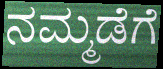
ನಮ್ಮಡೆಗೆ